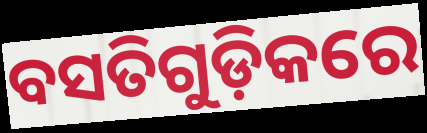
ବସତିଗୁଡ଼ିକରେ